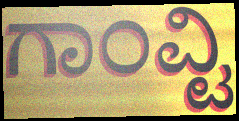
ಗಾಂವ್ಟಿ